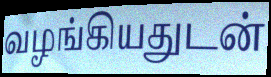
வழங்கியதுடன்